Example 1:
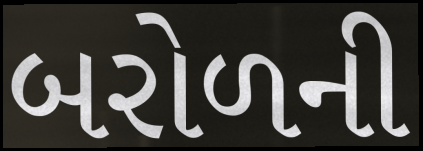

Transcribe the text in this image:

બરોળની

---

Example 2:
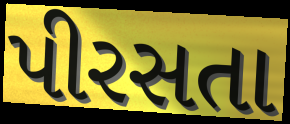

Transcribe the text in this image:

પીરસતા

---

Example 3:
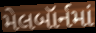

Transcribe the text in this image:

મેલબૉર્નમાં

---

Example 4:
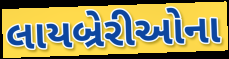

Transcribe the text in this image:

લાયબ્રેરીઓના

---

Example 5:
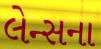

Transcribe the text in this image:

લેન્સના